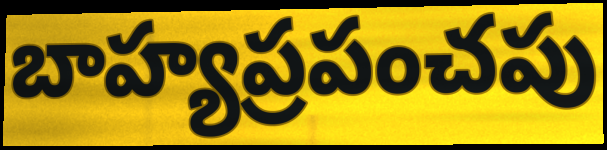
బాహ్యప్రపంచపు